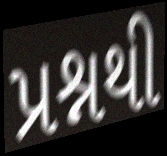
પ્રશ્નથી